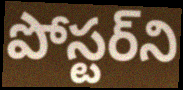
పోస్టర్‌ని